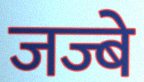
जज्बे